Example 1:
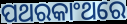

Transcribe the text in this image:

ପଥରକାଂଥରେ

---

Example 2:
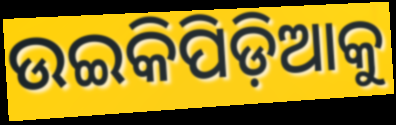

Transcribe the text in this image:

ଉଇକିପିଡ଼ିଆକୁ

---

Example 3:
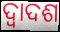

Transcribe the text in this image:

ଦ୍ବାଦଶ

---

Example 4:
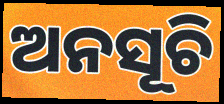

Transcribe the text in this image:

ଅନସୂଚି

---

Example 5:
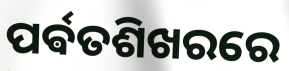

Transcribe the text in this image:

ପର୍ଵତଶିଖରରେ